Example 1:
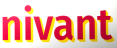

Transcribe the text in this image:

nivant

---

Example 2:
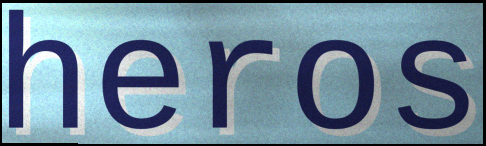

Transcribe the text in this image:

heros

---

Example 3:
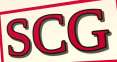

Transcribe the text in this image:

SCG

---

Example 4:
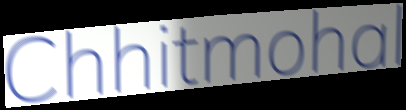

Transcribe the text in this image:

Chhitmohal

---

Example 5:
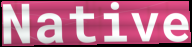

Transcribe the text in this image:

Native